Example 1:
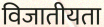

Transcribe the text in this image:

विजातीयता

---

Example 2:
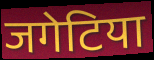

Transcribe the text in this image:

जगेटिया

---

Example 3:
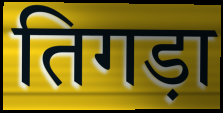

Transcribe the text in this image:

तिगड़ा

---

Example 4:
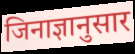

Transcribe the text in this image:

जिनाज्ञानुसार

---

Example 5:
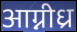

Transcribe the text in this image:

आग्नीध्र